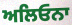
ਅਲਿਓਨਾ